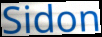
Sidon